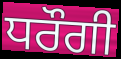
ਧਰੌਗੀ